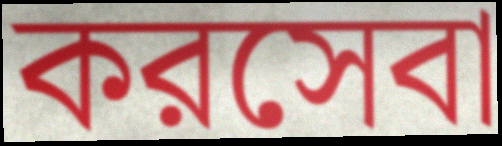
করসেবা